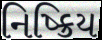
નિષ્ક્રિય